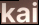
kai